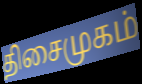
திசைமுகம்